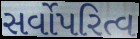
સર્વોપરિત્વ